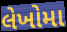
લેખોમા